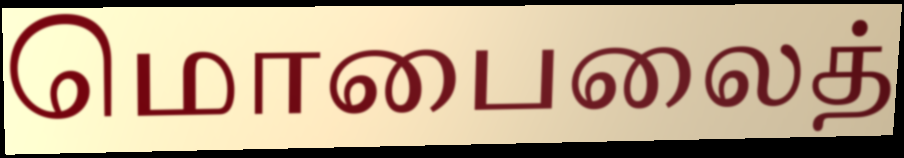
மொபைலைத்